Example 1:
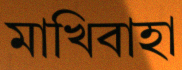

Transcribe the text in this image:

মাখিবাহা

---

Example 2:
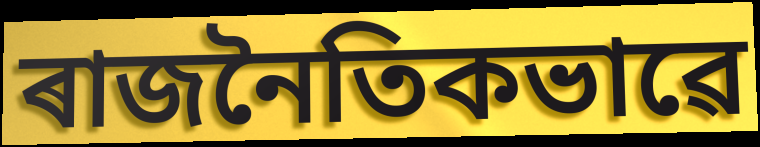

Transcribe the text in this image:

ৰাজনৈতিকভাৱে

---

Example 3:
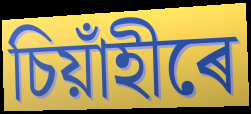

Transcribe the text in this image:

চিয়াঁহীৰে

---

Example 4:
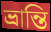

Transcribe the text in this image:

ভ্ৰান্তি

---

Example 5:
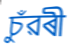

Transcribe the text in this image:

চুঁৱৰী